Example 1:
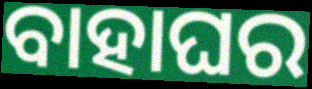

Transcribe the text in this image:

ବାହାଘର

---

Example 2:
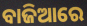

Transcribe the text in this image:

ବାଜିଆରେ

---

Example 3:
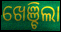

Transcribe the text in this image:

ଖେଞ୍ଚିଲା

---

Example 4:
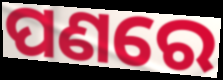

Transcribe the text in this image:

ପଣରେ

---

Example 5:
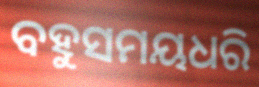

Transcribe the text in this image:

ବହୁସମୟଧରି